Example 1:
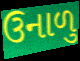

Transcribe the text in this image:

ઉનાળુ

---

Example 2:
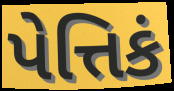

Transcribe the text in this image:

પેત્તિકં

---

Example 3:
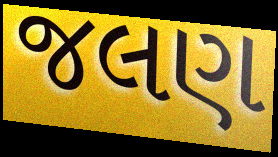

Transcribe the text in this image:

જલણ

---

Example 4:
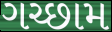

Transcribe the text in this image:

ગચ્છામ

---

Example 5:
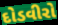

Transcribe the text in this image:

દોડવીરો